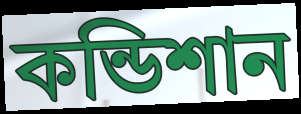
কন্ডিশান